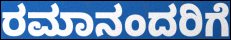
ರಮಾನಂದರಿಗೆ